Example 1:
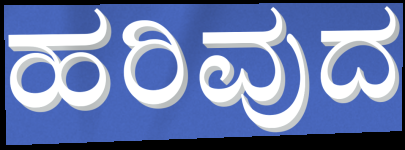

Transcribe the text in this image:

ಹರಿವುದ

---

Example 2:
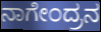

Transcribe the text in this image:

ನಾಗೇಂದ್ರನ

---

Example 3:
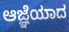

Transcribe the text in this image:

ಆಜ್ಞೆಯಾದ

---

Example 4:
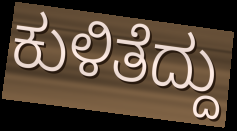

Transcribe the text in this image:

ಕುಳಿತೆದ್ದು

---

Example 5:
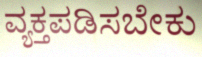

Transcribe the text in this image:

ವ್ಯಕ್ತಪಡಿಸಬೇಕು